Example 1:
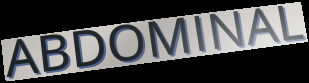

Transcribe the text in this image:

ABDOMINAL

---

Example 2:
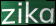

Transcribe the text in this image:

zika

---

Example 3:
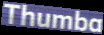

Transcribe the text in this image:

Thumba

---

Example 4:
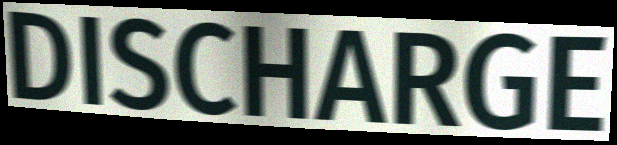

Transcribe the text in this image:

DISCHARGE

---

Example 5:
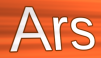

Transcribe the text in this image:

Ars